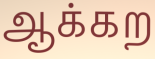
ஆக்கற